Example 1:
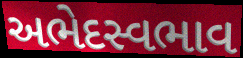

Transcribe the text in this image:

અભેદસ્વભાવ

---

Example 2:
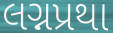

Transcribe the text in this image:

લગ્નપ્રથા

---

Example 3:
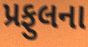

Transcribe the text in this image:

પ્રફુલના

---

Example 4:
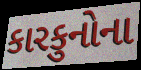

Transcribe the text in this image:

કારકુનોના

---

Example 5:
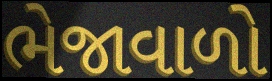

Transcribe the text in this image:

ભેજાવાળો